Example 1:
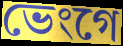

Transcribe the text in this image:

ভেংগে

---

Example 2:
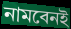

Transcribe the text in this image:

নামবেনই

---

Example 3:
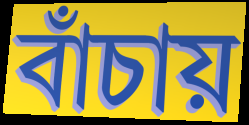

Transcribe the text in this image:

বাঁচায়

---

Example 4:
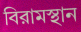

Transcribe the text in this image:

বিরামস্থান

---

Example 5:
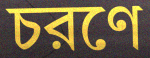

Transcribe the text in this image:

চরণে